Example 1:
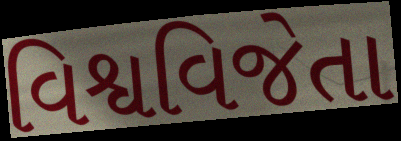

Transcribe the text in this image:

વિશ્વવિજેતા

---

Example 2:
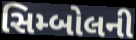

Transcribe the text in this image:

સિમ્બોલની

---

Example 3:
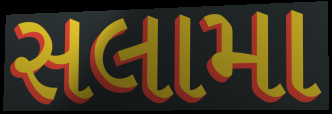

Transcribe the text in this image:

સલામા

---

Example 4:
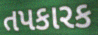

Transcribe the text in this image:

તપકારક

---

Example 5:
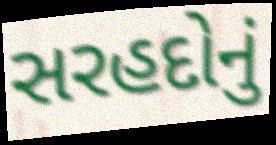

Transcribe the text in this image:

સરહદોનું